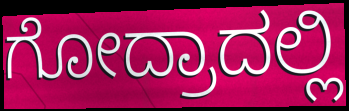
ಗೋದ್ರಾದಲ್ಲಿ